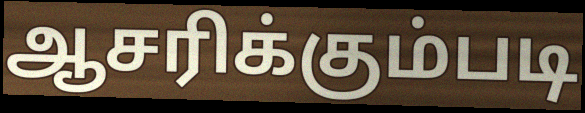
ஆசரிக்கும்படி